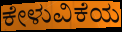
ಕೇಳುವಿಕೆಯ